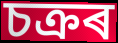
চক্ৰৰ